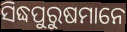
ସିଦ୍ଧପୁରୁଷମାନେ